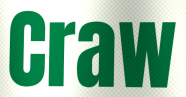
Craw